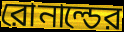
রোনাল্ডের